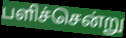
பளிச்சென்று